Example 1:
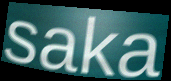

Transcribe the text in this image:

saka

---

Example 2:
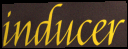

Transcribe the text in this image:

inducer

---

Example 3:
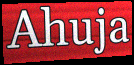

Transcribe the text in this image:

Ahuja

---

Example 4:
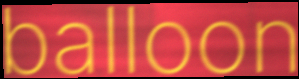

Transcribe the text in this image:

balloon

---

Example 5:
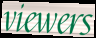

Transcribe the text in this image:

viewers